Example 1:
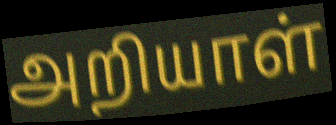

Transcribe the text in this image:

அறியாள்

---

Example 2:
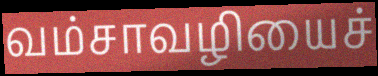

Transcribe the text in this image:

வம்சாவழியைச்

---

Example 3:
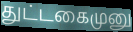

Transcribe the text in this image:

துட்டகைமுனு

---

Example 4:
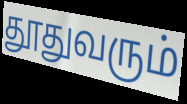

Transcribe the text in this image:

தூதுவரும்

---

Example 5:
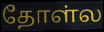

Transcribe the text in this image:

தோள்ல